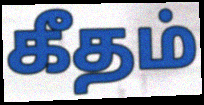
கீதம்